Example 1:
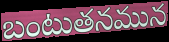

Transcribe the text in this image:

బంటుతనమున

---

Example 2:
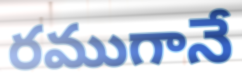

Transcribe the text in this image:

రముగానే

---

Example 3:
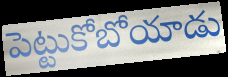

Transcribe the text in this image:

పెట్టుకోబోయాడు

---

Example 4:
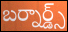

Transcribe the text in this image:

బర్నార్డ్స్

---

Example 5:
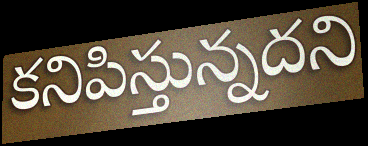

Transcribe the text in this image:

కనిపిస్తున్నదని